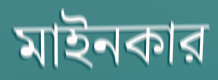
মাইনকার